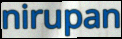
nirupan